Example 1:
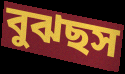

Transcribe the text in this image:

বুঝছস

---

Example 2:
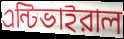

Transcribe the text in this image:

এন্টিভাইরাল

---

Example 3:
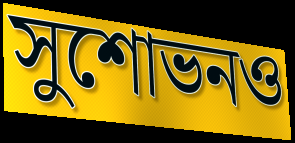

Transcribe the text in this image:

সুশোভনও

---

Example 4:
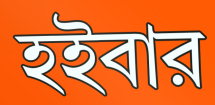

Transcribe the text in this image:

হইবার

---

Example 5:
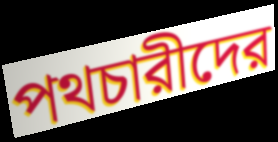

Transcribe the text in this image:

পথচারীদের